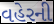
વહેરની